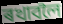
ৰখাবলৈ